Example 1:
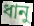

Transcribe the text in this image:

ধানু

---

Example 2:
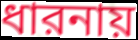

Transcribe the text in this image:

ধারনায়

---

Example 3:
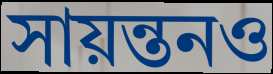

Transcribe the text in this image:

সায়ন্তনও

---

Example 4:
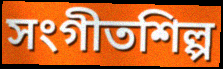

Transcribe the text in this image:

সংগীতশিল্প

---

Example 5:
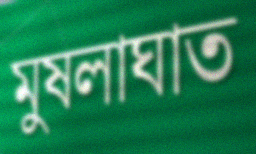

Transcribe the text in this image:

মুষলাঘাত